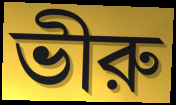
ভীরু